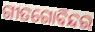
ଗୀତଗୋବିନ୍ଦର